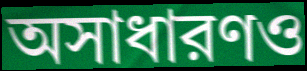
অসাধারণও